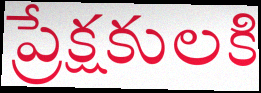
ప్రేక్షకులకి